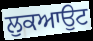
ਲੁਕਆਉਟ